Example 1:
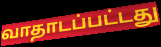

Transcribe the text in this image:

வாதாடப்பட்டது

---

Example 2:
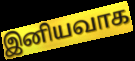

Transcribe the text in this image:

இனியவாக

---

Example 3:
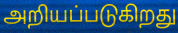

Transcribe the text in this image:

அறியப்படுகிறது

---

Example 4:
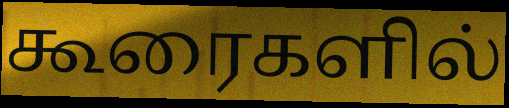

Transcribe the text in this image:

கூரைகளில்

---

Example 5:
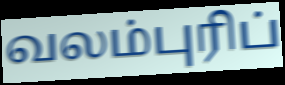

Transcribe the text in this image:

வலம்புரிப்